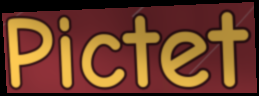
Pictet